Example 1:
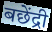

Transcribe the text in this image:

बछेंद्री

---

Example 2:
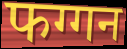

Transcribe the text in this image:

फग्‍गन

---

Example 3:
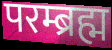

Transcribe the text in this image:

परम्ब्रह्म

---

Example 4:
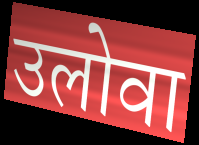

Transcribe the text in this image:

उलोवा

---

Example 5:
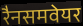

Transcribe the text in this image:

रैनसमवेयर